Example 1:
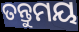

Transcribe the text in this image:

ତନ୍ତୁମୟ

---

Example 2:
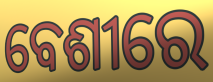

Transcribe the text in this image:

ବେଶୀରେ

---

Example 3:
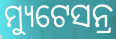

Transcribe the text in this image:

ମ୍ୟୁଟେସନ୍ର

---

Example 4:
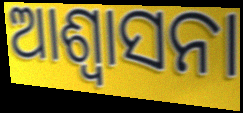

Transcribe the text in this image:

ଆଶ୍ୱାସନା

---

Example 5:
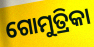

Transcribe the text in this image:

ଗୋମୁତ୍ରିକା